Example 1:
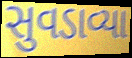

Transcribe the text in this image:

સુવડાવ્યા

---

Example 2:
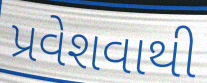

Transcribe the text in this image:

પ્રવેશવાથી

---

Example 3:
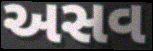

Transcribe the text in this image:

અસવ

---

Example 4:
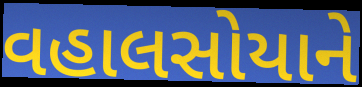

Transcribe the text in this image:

વહાલસોયાને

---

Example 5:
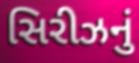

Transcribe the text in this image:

સિરીઝનું